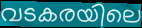
വടകരയിലെ